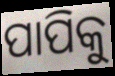
ପାପିକୁ